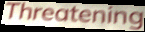
Threatening